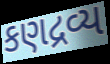
કણદ્રવ્ય